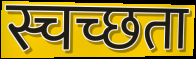
स्चच्छता